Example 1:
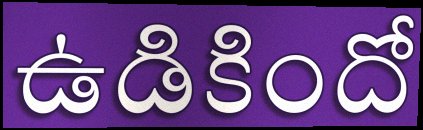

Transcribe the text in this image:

ఉడికిందో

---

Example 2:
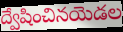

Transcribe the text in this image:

ద్వేషించినయెడల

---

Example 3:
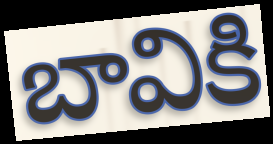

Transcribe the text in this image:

బావికి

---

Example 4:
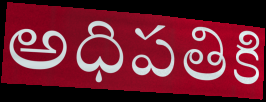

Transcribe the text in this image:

అధిపతికి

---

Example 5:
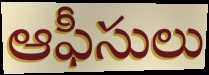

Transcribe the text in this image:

ఆఫీసులు